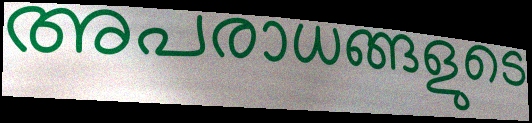
അപരാധങ്ങളുടെ